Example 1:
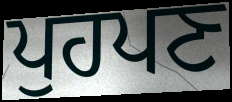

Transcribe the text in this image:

ਪੁਹਪਣ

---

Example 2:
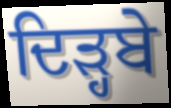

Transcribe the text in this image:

ਦਿੜ੍ਹਬੇ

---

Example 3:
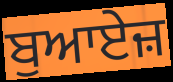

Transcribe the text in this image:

ਬੁਆਏਜ਼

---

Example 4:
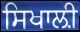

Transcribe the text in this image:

ਸਿਖਾਲ਼ੀ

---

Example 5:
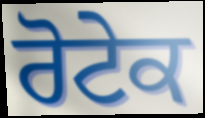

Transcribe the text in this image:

ਰੋਟੇਕ